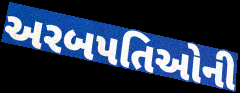
અરબપતિઓની